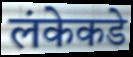
लंकेकडे